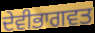
ਦੇਵੀਭਾਗਵਤ